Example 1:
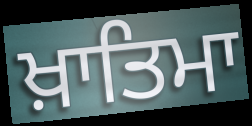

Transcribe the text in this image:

ਖ਼ਾਤਿਮਾ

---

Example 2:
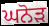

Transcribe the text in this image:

ਘਨੋੜ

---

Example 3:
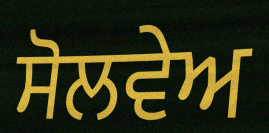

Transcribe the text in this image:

ਸੋਲਵੇਅ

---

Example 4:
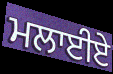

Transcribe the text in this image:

ਮਲਾਈਏ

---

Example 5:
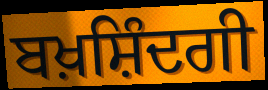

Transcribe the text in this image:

ਬਖ਼ਸ਼ਿੰਦਗੀ